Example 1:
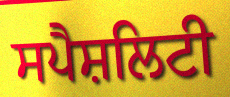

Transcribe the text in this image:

ਸਪੈਸ਼ਲਿਟੀ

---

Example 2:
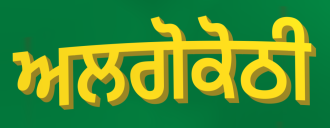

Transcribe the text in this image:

ਅਲਗੋਕੋਠੀ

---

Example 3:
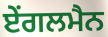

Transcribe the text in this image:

ਏਂਗਲਮੈਨ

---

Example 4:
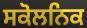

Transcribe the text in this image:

ਸਕੋਲਨਿਕ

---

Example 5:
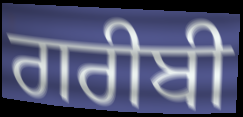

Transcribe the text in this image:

ਗਰੀਬੀ